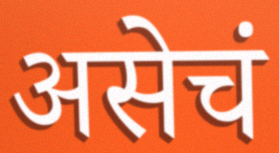
असेचं